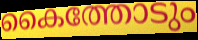
കൈത്തോടും